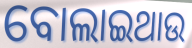
ବୋଲାଇଥାଉ